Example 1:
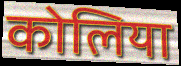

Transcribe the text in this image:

कोलिया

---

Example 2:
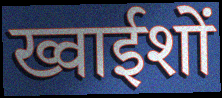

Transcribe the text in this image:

ख्वाईशों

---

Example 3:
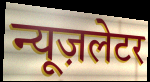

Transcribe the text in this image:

न्यूज़लेटर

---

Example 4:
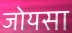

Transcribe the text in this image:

जोयसा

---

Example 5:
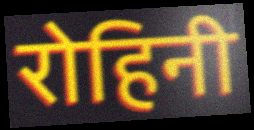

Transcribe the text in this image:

रोहिनी